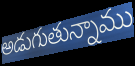
అడుగుతున్నాము